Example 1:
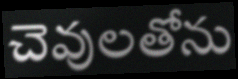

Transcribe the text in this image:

చెవులతోను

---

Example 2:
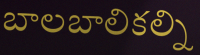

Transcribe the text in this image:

బాలబాలికల్ని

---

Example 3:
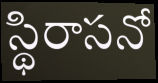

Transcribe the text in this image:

స్థిరాసనో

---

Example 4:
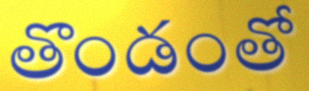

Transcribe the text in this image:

తొండంతో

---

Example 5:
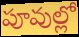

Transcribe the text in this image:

పూవుల్లో